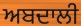
ਅਬਦਾਲੀ